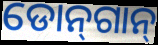
ଡୋନ୍‌ଗାନ୍